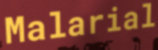
Malarial